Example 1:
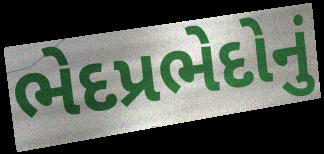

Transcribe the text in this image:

ભેદપ્રભેદોનું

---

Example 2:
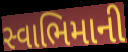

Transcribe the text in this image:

સ્વાભિમાની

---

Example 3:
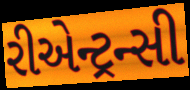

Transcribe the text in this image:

રીએન્ટ્રન્સી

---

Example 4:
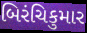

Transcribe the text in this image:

બિરંચિકુમાર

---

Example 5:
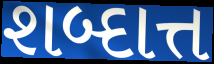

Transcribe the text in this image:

શબ્દાત્ત